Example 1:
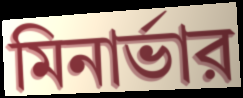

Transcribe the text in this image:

মিনার্ভার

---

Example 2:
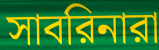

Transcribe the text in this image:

সাবরিনারা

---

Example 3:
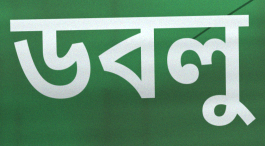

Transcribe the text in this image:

ডবলু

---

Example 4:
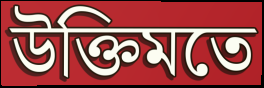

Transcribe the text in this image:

উক্তিমতে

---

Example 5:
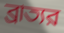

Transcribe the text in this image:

ব্রাত্যর